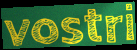
vostri